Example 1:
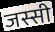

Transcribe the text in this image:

जस्सी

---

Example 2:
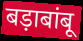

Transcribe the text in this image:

बड़ाबांबू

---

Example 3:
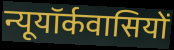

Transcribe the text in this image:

न्यूयॉर्कवासियों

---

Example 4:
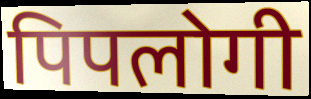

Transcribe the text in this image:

पिपलोगी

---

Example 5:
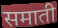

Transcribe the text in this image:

समाती